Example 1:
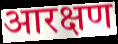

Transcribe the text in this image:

आरक्षण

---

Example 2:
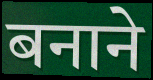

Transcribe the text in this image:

बनाने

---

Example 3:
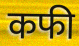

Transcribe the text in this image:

कफी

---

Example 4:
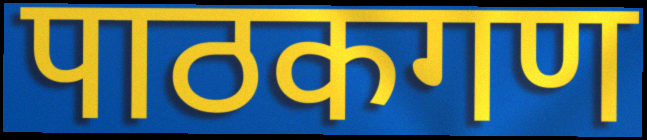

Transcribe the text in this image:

पाठकगण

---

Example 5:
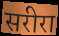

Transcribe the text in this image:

सरीरा